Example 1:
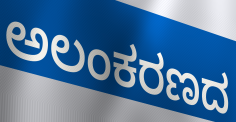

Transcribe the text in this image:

ಅಲಂಕರಣದ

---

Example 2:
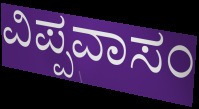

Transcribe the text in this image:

ವಿಪ್ಪವಾಸಂ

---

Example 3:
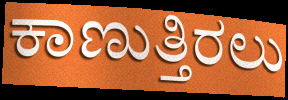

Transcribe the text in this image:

ಕಾಣುತ್ತಿರಲು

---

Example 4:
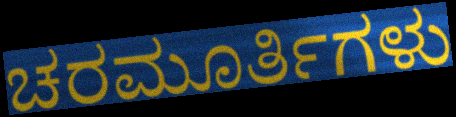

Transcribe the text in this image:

ಚರಮೂರ್ತಿಗಳು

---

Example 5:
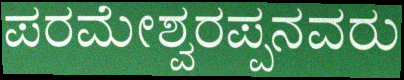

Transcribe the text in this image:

ಪರಮೇಶ್ವರಪ್ಪನವರು